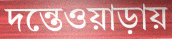
দন্তেওয়াড়ায়